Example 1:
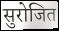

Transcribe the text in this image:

सुरोजित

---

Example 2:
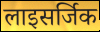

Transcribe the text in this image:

लाइसर्जिक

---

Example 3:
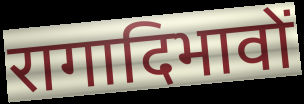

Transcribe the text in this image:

रागादिभावों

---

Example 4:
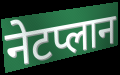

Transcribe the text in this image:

नेटप्लान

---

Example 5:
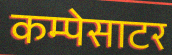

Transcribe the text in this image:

कम्पेसाटर